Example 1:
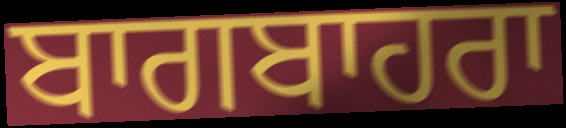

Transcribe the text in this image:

ਬਾਗਬਾਹਰਾ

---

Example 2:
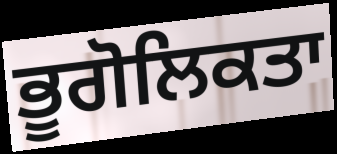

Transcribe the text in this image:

ਭੂਗੋਲਿਕਤਾ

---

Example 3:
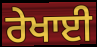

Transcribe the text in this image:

ਰੇਖਾਈ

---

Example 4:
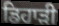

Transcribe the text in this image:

ਡਿਹਾੜੀ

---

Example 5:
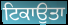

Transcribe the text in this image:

ਟਿਕਾਉਤਾ